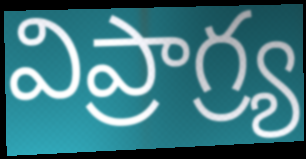
విప్రాగ్ర్య